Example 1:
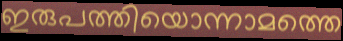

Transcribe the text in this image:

ഇരുപത്തിയൊന്നാമത്തെ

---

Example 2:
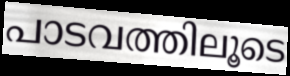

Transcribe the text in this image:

പാടവത്തിലൂടെ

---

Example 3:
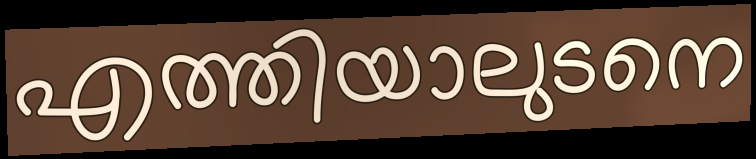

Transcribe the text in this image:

എത്തിയാലുടനെ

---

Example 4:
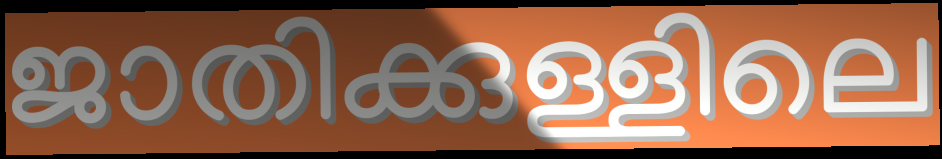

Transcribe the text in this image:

ജാതിക്കുള്ളിലെ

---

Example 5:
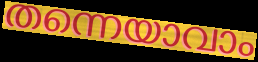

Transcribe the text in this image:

തന്നെയാവാം